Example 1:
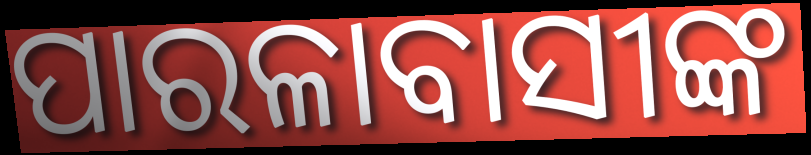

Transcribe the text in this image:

ପାରଳାବାସୀଙ୍କ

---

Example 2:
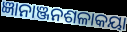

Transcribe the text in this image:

ଜ୍ଞାନାଞ୍ଜନଶଳାକୟା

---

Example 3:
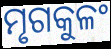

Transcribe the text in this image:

ମୃଗକୁଳଂ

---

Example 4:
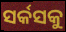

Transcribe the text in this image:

ସର୍କସକୁ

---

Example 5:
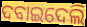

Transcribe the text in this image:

ଦବାଇଦେଲି